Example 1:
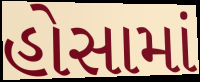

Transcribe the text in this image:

હોસામાં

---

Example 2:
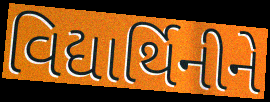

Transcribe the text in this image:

વિદ્યાર્થિનીને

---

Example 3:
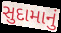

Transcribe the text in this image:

સુદામાનું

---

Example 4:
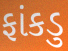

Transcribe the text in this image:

ફાંકડુ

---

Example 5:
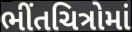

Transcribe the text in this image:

ભીંતચિત્રોમાં